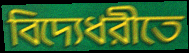
বিদ্যেধরীতে